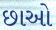
છાઓ